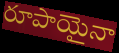
రూపాయైనా